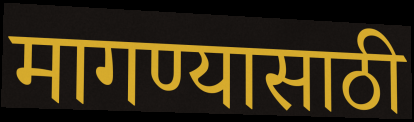
मागण्यासाठी